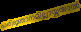
പരിജ്ഞാനമില്ലായ്കയാൽ